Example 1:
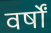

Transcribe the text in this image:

वर्षों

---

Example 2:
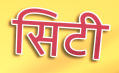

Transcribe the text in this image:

सिटी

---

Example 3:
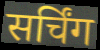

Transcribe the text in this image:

सर्चिंग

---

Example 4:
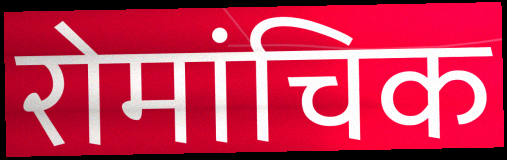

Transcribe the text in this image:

रोमांचिक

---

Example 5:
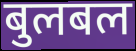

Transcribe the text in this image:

बुलबल